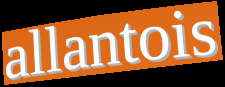
allantois